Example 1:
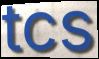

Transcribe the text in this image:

tcs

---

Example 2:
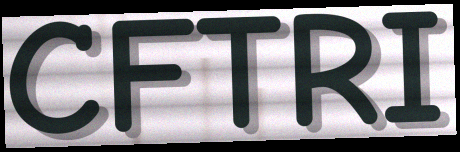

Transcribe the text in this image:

CFTRI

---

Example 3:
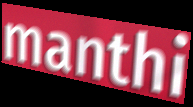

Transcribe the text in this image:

manthi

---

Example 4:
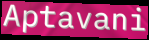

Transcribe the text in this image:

Aptavani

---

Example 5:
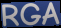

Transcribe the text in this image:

RGA